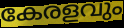
കേരളവും